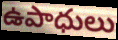
ఉపాధులు